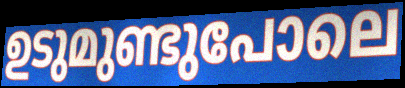
ഉടുമുണ്ടുപോലെ